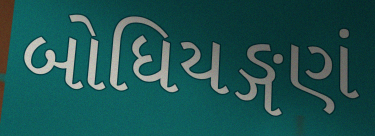
બોધિયઙ્ગણં